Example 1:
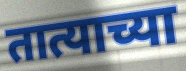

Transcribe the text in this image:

तात्याच्या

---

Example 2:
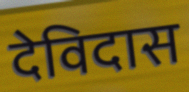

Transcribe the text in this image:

देविदास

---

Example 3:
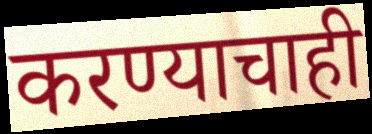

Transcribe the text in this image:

करण्याचाही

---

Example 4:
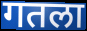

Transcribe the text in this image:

गतला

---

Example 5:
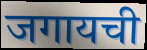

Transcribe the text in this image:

जगायची